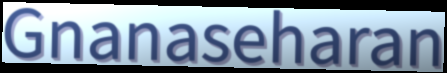
Gnanaseharan